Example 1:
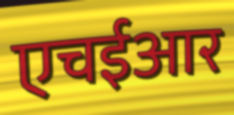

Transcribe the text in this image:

एचईआर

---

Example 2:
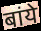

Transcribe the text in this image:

बांये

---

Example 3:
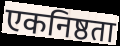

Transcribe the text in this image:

एकनिष्ठता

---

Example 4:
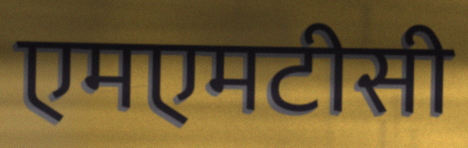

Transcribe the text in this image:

एमएमटीसी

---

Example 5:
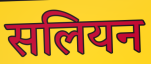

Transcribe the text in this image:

सलियन